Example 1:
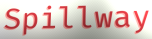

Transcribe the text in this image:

Spillway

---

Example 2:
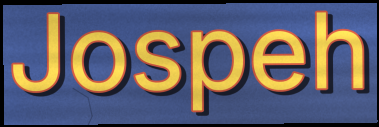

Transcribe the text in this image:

Jospeh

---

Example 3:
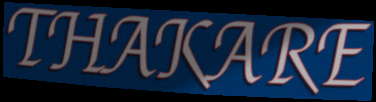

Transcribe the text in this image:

THAKARE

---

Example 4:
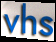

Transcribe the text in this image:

vhs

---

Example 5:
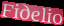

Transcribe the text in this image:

Fidelio